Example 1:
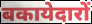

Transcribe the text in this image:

बकायेदारों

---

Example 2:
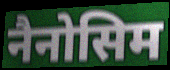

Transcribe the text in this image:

नैनोसिम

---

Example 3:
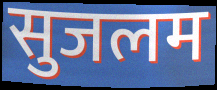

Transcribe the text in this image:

सुजलम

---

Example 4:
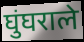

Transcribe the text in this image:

घुंघराले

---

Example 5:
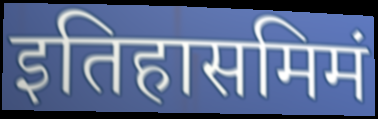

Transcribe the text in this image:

इतिहासमिमं